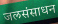
जलसंसाधन